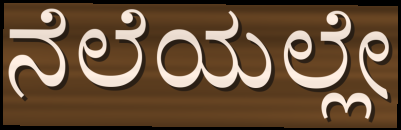
ನೆಲೆಯಲ್ಲೇ